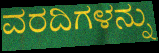
ವರದಿಗಳನ್ನು